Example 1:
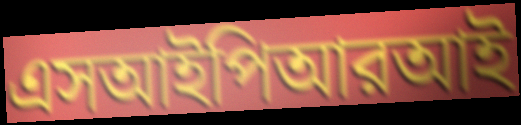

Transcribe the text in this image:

এসআইপিআরআই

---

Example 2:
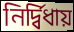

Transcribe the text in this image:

নির্দ্বিধায়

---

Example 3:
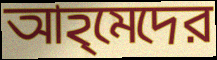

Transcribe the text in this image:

আহ্‌মেদের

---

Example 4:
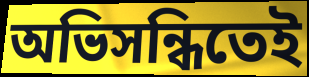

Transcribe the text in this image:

অভিসন্ধিতেই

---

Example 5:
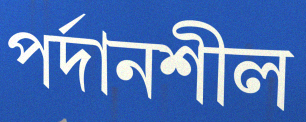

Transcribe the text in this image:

পর্দানশীল